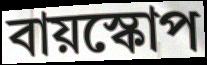
বায়স্কোপ